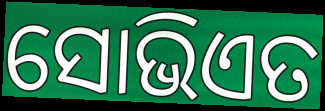
ସୋଭିଏତ